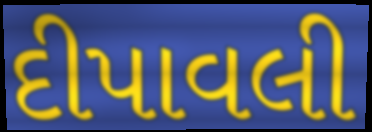
દીપાવલી